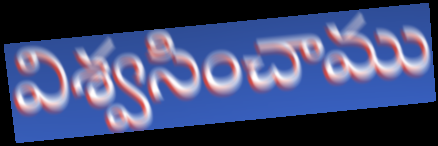
విశ్వసించాము